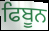
ਫਿਬੂਨ